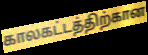
காலகட்டத்திற்கான